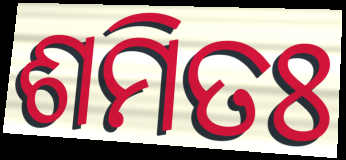
ଶମିତଃ